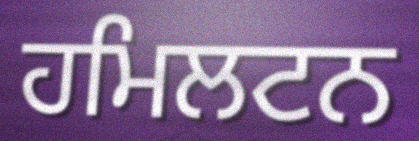
ਹਮਿਲਟਨ